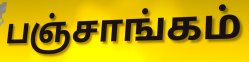
பஞ்சாங்கம்